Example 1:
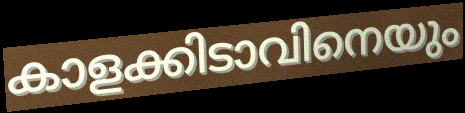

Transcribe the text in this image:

കാളക്കിടാവിനെയും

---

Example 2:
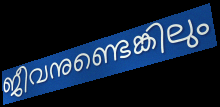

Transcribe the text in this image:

ജീവനുണ്ടെങ്കിലും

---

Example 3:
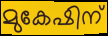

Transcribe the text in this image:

മുകേഷിന്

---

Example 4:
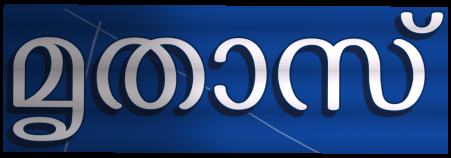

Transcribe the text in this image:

മൃതാസ്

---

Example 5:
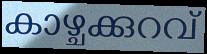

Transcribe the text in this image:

കാഴ്ചക്കുറവ്